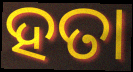
ହତା